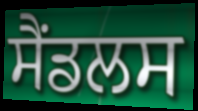
ਸੈਂਡਲਸ